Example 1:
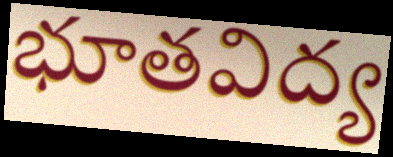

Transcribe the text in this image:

భూతవిద్య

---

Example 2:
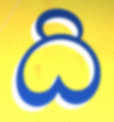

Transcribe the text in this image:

ది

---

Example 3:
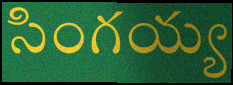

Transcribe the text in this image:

సింగయ్య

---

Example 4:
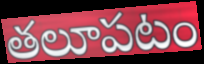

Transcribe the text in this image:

తలూపటం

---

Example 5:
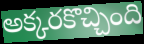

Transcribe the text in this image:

అక్కరకొచ్చింది